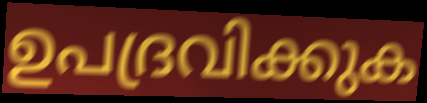
ഉപദ്രവിക്കുക